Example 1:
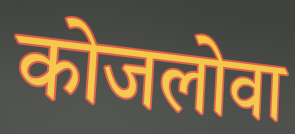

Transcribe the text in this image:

कोजलोवा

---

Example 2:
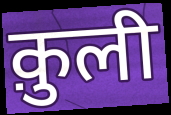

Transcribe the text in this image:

क़ुली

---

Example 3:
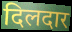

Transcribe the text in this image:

दिलदार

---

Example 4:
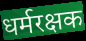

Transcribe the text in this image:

धर्मरक्षक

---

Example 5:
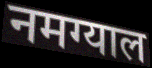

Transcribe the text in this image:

नमग्याल